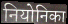
नियोनिका